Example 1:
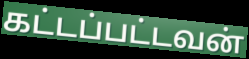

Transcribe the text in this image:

கட்டப்பட்டவன்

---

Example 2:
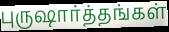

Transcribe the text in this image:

புருஷார்த்தங்கள்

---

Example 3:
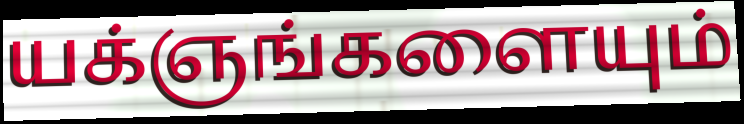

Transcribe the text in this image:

யக்ஞங்களையும்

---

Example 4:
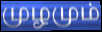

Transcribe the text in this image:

முழமும்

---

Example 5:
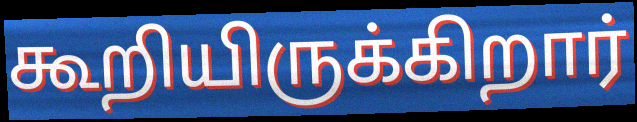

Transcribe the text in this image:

கூறியிருக்கிறார்